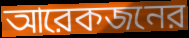
আরেকজনের